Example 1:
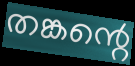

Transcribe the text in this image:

തങ്കന്റെ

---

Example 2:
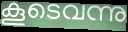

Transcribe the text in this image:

കൂടെവന്നു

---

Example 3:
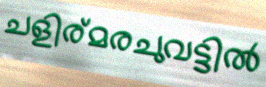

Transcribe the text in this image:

ചളിര്മരചുവട്ടിൽ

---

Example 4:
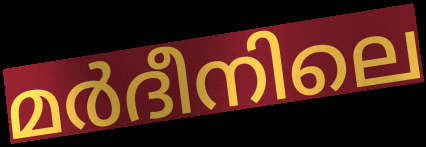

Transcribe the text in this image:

മർദീനിലെ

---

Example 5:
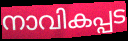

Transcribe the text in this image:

നാവികപ്പട